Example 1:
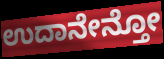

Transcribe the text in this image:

ಉದಾನೇನ್ತೋ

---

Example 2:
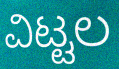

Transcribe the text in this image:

ವಿಟ್ಟಲ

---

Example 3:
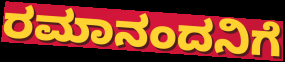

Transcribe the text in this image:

ರಮಾನಂದನಿಗೆ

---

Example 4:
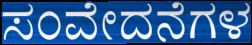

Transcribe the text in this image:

ಸಂವೇದನೆಗಳ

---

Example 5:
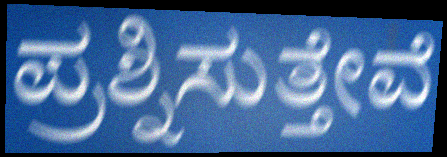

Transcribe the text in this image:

ಪ್ರಶ್ನಿಸುತ್ತೇವೆ